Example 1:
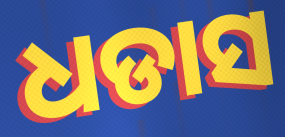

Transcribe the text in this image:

ଧଡାସ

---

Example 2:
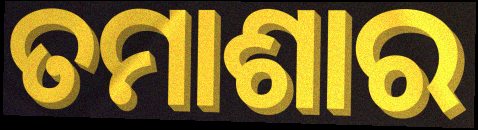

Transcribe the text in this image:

ତମାଶାର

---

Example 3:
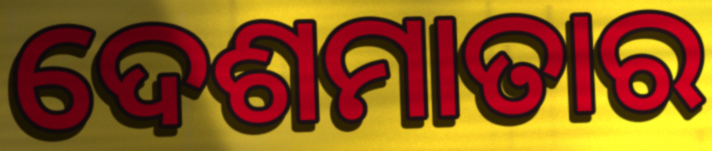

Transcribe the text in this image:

ଦେଶମାତାର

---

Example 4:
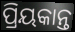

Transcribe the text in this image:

ପ୍ରିୟକାନ୍ତ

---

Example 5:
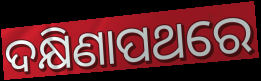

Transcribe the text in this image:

ଦକ୍ଷିଣାପଥରେ